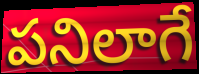
పనిలాగే